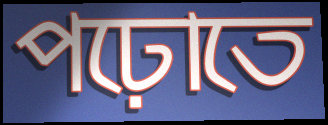
পঢ়োতে